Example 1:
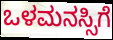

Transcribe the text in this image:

ಒಳಮನಸ್ಸಿಗೆ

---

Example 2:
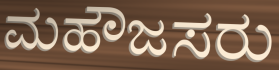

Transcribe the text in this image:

ಮಹೌಜಸರು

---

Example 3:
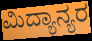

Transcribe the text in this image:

ಮಿದ್ಯಾನ್ಯರ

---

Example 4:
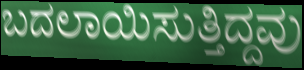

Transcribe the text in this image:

ಬದಲಾಯಿಸುತ್ತಿದ್ದವು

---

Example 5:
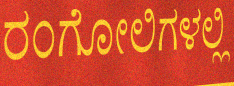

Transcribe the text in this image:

ರಂಗೋಲಿಗಳಲ್ಲಿ